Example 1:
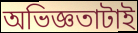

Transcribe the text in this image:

অভিজ্ঞতাটাই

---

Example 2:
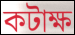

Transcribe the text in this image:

কটাক্ষ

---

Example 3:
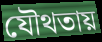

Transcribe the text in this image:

যৌথতায়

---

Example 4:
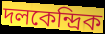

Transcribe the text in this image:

দলকেন্দ্রিক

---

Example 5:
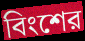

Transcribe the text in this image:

বিংশের